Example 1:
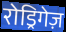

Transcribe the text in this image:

रोड्रिगेज़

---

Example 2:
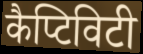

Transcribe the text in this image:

कैप्टिविटी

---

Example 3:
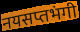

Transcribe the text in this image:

नयसप्तभंगी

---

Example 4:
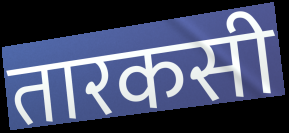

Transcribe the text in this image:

तारकसी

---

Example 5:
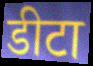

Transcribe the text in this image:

डीटा